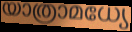
യാത്രാമധ്യേ